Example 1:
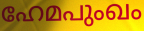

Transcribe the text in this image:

ഹേമപുംഖം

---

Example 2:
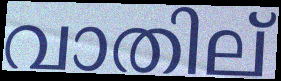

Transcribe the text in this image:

വാതില്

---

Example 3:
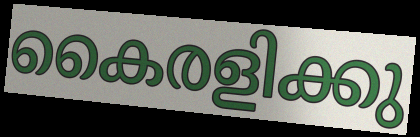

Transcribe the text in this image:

കൈരളിക്കു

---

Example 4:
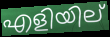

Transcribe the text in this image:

എളിയില്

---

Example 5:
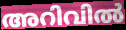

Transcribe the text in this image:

അറിവിൽ